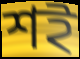
শই